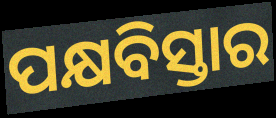
ପକ୍ଷବିସ୍ତାର